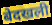
बेदखली